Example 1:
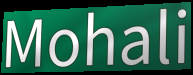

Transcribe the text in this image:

Mohali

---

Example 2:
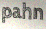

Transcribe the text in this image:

pahn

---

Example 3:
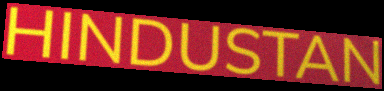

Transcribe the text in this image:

HINDUSTAN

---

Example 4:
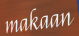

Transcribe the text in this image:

makaan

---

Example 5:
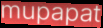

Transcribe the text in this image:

mupapat